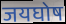
जयघोष